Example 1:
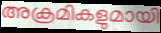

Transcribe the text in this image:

അക്രമികളുമായി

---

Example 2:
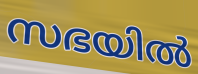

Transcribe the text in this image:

സഭയിൽ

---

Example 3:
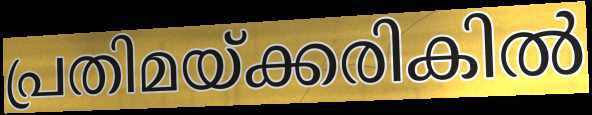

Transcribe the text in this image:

പ്രതിമയ്ക്കരികിൽ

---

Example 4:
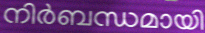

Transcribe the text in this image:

നിർബന്ധമായി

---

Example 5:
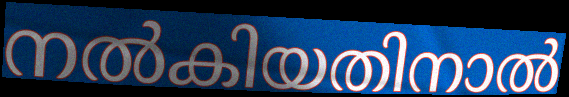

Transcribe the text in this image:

നൽകിയതിനാൽ